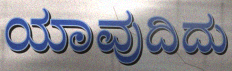
ಯಾವುದಿದು